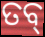
ତବ୍